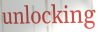
unlocking